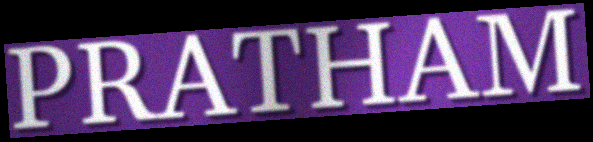
PRATHAM